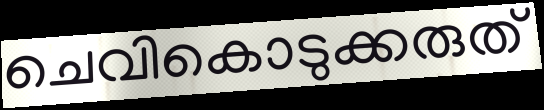
ചെവികൊടുക്കരുത്